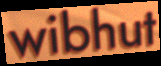
wibhut